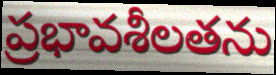
ప్రభావశీలతను